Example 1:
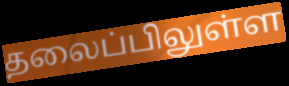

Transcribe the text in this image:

தலைப்பிலுள்ள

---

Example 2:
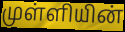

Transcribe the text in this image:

முள்ளியின்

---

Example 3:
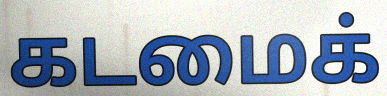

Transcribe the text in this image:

கடமைக்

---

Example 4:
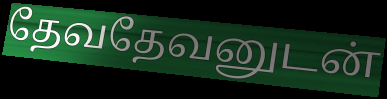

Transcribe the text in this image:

தேவதேவனுடன்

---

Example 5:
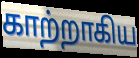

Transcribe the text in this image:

காற்றாகிய